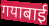
गयाबाई